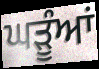
ਘੜੂੰਆਂ